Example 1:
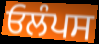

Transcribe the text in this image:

ਓਲੰਪਸ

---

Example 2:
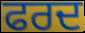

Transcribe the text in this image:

ਫਰਦ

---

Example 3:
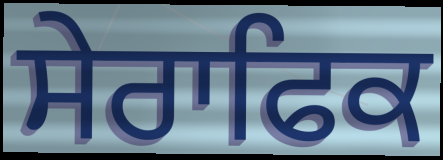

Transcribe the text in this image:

ਸੇਰਾਫਿਕ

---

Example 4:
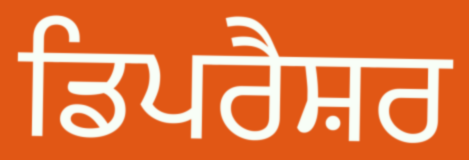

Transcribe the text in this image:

ਡਿਪਰੈਸ਼ਰ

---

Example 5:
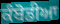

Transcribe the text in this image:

ਕੰਬੋਡੀਆ